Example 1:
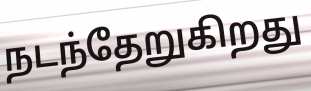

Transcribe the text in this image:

நடந்தேறுகிறது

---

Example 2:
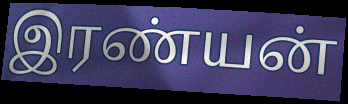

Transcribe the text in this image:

இரண்யன்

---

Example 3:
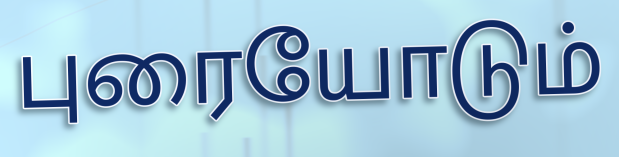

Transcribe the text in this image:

புரையோடும்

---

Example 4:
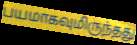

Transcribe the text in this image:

பயமாகவுமிருந்தது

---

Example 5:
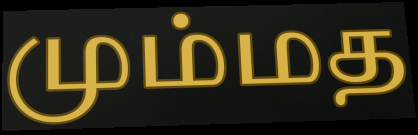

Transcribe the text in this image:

மும்மத